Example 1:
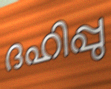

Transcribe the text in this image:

ദഹിപ്പു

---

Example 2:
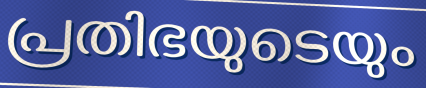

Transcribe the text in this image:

പ്രതിഭയുടെയും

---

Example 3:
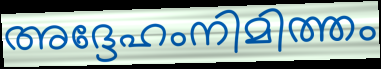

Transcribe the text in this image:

അദ്ദേഹംനിമിത്തം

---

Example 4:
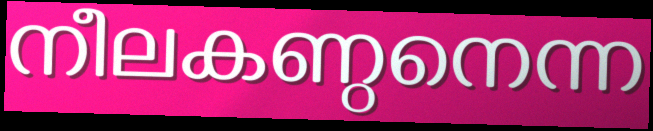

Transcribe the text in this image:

നീലകണ്ഠനെന്ന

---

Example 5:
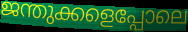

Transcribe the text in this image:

ജന്തുക്കളെപ്പോലെ